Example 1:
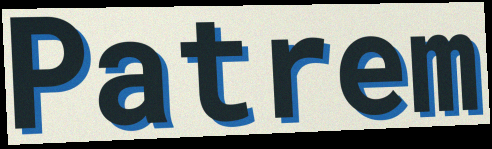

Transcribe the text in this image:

Patrem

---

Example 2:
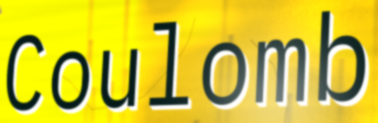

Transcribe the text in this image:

Coulomb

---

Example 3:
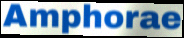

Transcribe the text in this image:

Amphorae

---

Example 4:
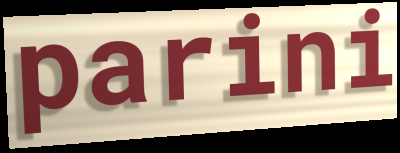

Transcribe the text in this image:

parini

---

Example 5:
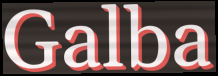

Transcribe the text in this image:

Galba